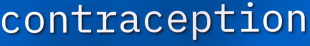
contraception